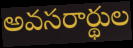
అవసరార్థుల